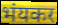
भंयकर